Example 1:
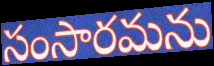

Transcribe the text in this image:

సంసారమను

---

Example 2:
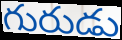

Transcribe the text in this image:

గురుడు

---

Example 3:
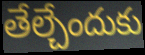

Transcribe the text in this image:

తేల్చేందుకు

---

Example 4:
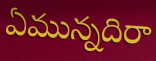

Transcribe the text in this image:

ఏమున్నదిరా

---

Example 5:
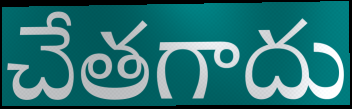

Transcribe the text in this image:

చేతగాదు